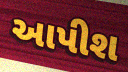
આપીશ